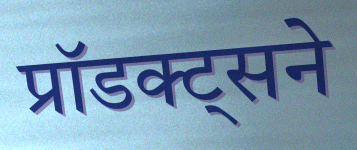
प्रॉडक्ट्सने